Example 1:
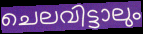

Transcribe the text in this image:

ചെലവിട്ടാലും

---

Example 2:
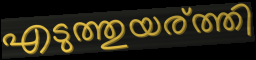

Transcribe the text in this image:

എടുത്തുയര്ത്തി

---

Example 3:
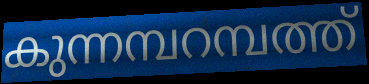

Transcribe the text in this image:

കുന്നമ്പറമ്പത്ത്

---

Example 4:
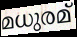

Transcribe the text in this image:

മധുരമ്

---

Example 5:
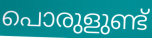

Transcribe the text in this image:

പൊരുളുണ്ട്